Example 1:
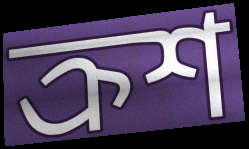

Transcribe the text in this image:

ক্রশ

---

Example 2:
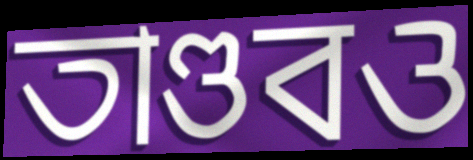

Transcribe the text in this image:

তাণ্ডবও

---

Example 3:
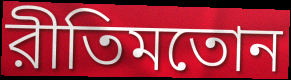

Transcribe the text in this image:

রীতিমতোন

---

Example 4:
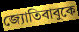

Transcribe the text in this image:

জ্যোতিবাবুকে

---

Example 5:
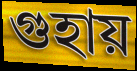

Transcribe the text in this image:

গুহায়